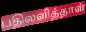
பதிலளித்தாள்